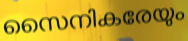
സൈനികരേയും